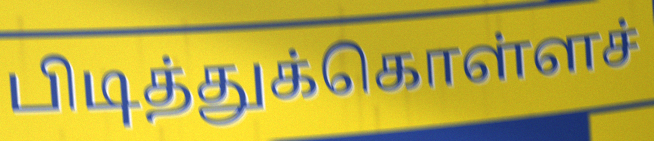
பிடித்துக்கொள்ளச்